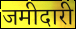
जमीदारी